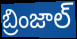
బ్రింజాల్